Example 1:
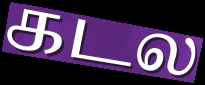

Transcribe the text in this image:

கடல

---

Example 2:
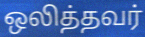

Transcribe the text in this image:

ஒலித்தவர்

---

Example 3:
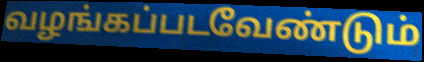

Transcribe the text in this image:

வழங்கப்படவேண்டும்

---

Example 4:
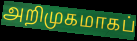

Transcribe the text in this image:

அறிமுகமாகப்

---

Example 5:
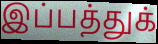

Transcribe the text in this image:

இப்பத்துக்